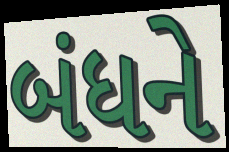
બંધને